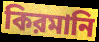
কিরমানি